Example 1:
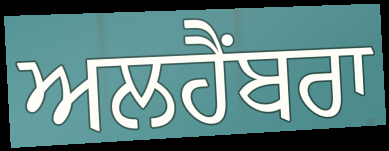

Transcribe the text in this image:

ਅਲਹੈਂਬਰਾ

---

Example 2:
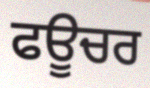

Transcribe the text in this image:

ਫਊਚਰ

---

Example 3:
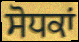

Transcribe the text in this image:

ਸੋਧਕਾਂ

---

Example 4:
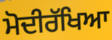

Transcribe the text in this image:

ਮੋਦੀਰੱਖਿਆ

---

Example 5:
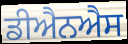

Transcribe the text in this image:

ਡੀਐਨਐਸ